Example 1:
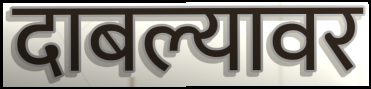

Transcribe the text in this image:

दाबल्यावर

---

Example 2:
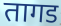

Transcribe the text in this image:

तागड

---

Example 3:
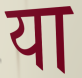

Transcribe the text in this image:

या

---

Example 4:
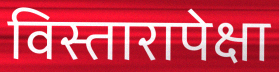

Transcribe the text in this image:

विस्तारापेक्षा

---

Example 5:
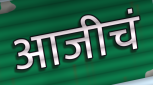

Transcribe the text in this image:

आजीचं